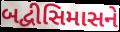
બદ્વીસિમાસને